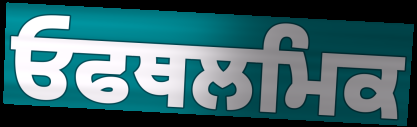
ਓਫਥਲਮਿਕ